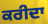
ਕਰੀਦਾ